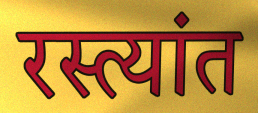
रस्त्यांत